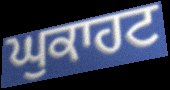
ਘੁਕਾਹਟ